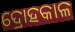
ଦ୍ରୋହକାଳ